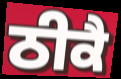
ਠੀਕੈ